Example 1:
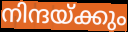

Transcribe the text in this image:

നിന്ദയ്ക്കും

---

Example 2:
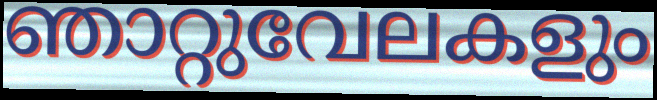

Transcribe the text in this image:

ഞാറ്റുവേലകളും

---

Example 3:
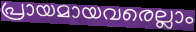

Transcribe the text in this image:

പ്രായമായവരെല്ലാം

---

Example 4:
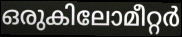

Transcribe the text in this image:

ഒരുകിലോമീറ്റർ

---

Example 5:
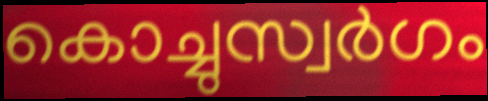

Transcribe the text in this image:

കൊച്ചുസ്വർഗം